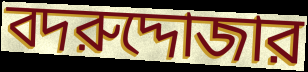
বদরুদ্দোজার